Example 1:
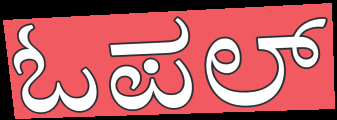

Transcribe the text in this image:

ಓಪಲ್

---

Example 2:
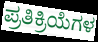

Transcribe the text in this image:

ಪ್ರತಿಕ್ರಿಯೆಗಳ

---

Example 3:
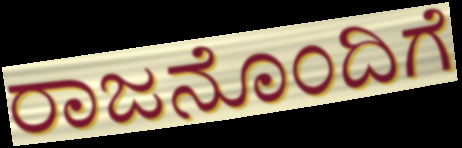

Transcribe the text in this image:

ರಾಜನೊಂದಿಗೆ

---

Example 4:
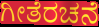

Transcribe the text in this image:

ಗೀತೆರಚನೆ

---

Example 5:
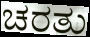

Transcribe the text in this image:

ಚರತು